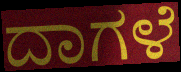
ದಾಗಳೆ